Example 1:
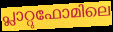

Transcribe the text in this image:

പ്ലാറ്റുഫോമിലെ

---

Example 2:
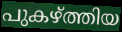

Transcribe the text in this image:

പുകഴ്ത്തിയ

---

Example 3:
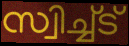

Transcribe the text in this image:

സ്വിച്ച്ട്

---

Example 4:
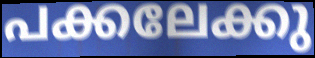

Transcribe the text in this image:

പക്കലേക്കു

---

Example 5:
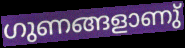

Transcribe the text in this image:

ഗുണങ്ങളാണു്